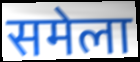
समेला